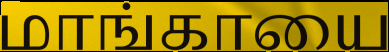
மாங்காயை